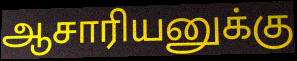
ஆசாரியனுக்கு